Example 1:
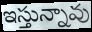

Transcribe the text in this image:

ఇస్తున్నావు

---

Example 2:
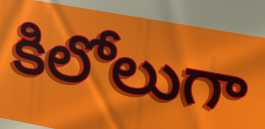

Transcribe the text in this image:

కిలోలుగా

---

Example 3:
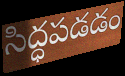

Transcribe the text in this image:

సిద్ధపడడం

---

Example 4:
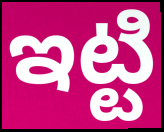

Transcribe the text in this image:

ఇట్టి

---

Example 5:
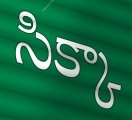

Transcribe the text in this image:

సిక్కా